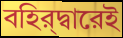
বহির্‌দ্বারেই